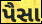
પૈસા